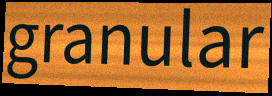
granular